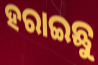
ହରାଇଛୁ